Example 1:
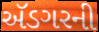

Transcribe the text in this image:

ઍડગરની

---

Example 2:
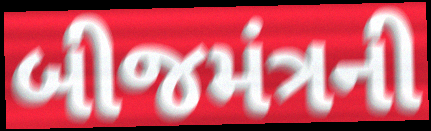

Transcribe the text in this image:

બીજમંત્રની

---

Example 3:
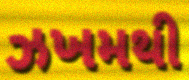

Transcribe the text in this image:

ઝખમથી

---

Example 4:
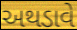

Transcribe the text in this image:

અથડાવે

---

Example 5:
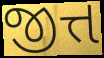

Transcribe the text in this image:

જીત્ત